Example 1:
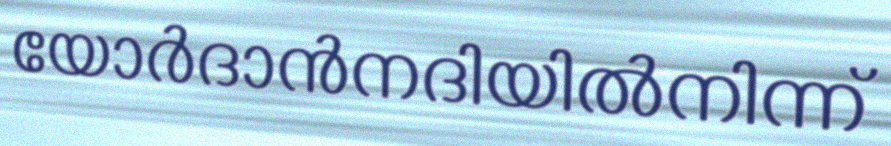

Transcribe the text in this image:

യോർദാൻനദിയിൽനിന്ന്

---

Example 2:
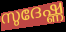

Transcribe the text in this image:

സുദേഷ്ണ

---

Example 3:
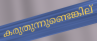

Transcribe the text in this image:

കരുതുന്നുണ്ടെങ്കില്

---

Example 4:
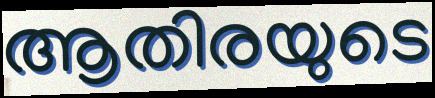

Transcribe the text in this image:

ആതിരയുടെ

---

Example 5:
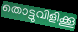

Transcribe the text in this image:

തൊട്ടുവിളിക്കൂ